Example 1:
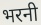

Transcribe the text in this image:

भरनी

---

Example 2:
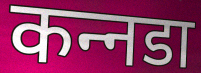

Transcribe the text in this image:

कन्नडा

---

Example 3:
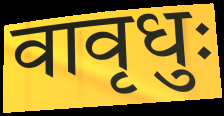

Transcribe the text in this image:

वावृधुः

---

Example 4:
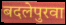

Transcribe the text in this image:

बदलेपुरवा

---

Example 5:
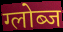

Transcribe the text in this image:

ग्लोब्ज